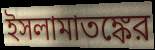
ইসলামাতঙ্কের